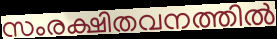
സംരക്ഷിതവനത്തിൽ